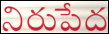
నిరుపేద